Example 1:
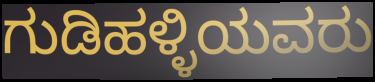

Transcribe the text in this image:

ಗುಡಿಹಳ್ಳಿಯವರು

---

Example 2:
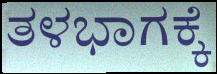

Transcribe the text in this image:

ತಳಭಾಗಕ್ಕೆ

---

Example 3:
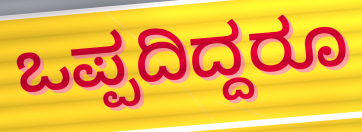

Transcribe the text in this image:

ಒಪ್ಪದಿದ್ದರೂ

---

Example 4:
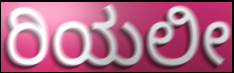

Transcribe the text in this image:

ರಿಯಲೀ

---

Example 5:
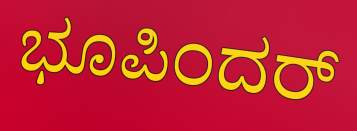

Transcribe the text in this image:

ಭೂಪಿಂದರ್